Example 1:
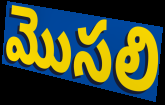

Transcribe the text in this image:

మొసలి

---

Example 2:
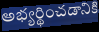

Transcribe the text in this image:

అభ్యర్థించడానికి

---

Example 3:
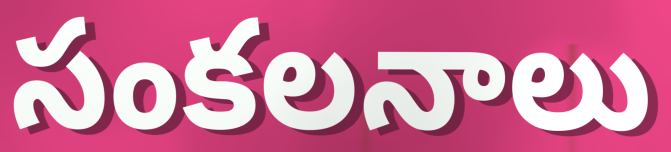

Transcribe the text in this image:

సంకలనాలు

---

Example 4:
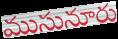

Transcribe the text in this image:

ముసునూరు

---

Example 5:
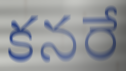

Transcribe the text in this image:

కనరే